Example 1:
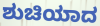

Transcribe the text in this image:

ಶುಚಿಯಾದ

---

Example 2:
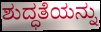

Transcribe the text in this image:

ಶುದ್ಧತೆಯನ್ನು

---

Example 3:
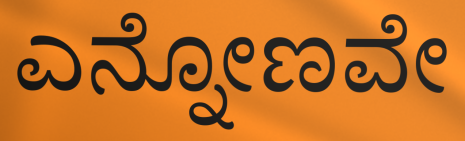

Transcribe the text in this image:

ಎನ್ನೋಣವೇ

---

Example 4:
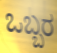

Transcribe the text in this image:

ಒಬ್ಬರ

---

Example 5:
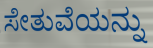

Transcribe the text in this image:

ಸೇತುವೆಯನ್ನು